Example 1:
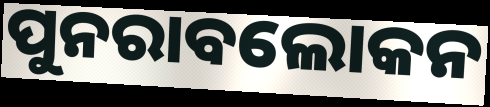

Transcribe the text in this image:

ପୁନରାବଲୋକନ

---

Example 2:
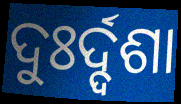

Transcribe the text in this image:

ଦୁଃର୍ଦ୍ଦଶା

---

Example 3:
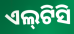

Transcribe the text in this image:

ଏଲ୍‌ଟିସି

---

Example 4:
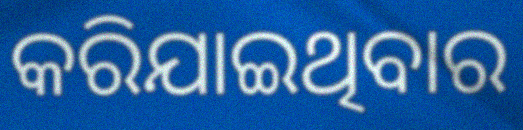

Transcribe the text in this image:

କରିଯାଇଥିବାର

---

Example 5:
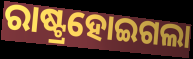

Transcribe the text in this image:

ରାଷ୍ଟ୍ରହୋଇଗଲା